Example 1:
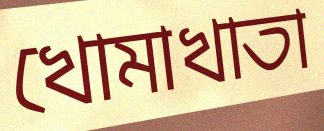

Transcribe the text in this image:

খোমাখাতা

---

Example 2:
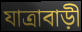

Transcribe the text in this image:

যাত্রাবাড়ী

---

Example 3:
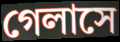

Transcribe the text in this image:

গেলাসে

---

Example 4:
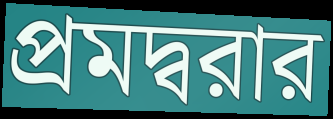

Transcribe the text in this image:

প্রমদ্বরার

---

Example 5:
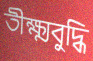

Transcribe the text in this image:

তীক্ষ্মবুদ্ধি